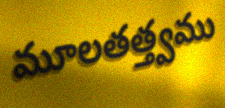
మూలతత్త్వము